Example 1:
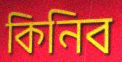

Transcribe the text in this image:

কিনিব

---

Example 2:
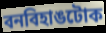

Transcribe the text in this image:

বনবিহাঙটোক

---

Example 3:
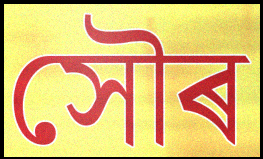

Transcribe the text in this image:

সৌৰ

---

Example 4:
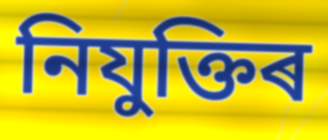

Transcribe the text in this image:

নিযুক্তিৰ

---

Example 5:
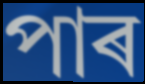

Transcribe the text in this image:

পাৰ